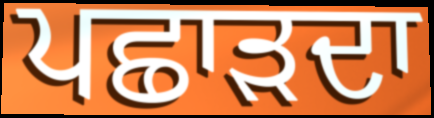
ਪਛਾੜਦਾ